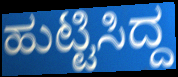
ಹುಟ್ಟಿಸಿದ್ದ